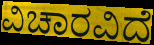
ವಿಚಾರವಿದೆ